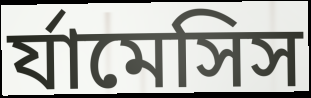
র্যামেসিস